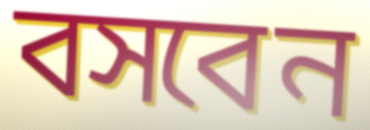
বসবেন